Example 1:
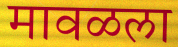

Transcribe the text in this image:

मावळला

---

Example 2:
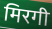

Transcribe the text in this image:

मिरगी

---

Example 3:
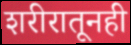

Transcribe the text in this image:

शरीरातूनही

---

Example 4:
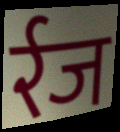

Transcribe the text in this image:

र्रज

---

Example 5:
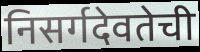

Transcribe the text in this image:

निसर्गदेवतेची